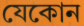
যেকোন